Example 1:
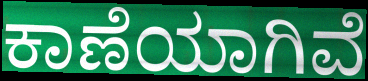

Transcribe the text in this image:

ಕಾಣೆಯಾಗಿವೆ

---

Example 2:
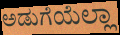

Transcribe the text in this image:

ಅಡುಗೆಯೆಲ್ಲಾ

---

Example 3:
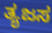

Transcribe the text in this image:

ತ್ಯಜಸ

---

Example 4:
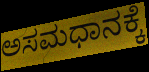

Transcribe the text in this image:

ಅಸಮಧಾನಕ್ಕೆ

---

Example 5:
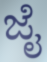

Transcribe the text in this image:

ಜೈ